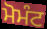
ਮੋਮੰਟ